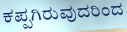
ಕಪ್ಪಗಿರುವುದರಿಂದ